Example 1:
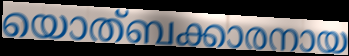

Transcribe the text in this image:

യൊത്ബക്കാരനായ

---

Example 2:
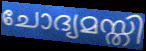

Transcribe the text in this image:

ചോദ്യമസ്തി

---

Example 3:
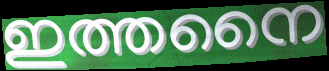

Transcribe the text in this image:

ഇത്തനൈ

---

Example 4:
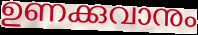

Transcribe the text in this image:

ഉണക്കുവാനും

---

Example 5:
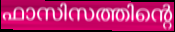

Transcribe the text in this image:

ഫാസിസത്തിന്റെ